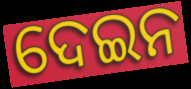
ଦେଇନ